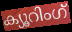
ക്യൂറിംഗ്